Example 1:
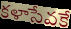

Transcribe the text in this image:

కళాసేవకే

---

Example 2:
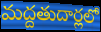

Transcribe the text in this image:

మద్దతుదార్లలో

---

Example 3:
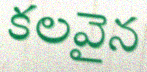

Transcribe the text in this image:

కలవైన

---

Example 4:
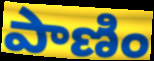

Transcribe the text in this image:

పాణిం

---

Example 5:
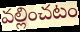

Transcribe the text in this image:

వల్లించటం